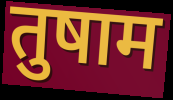
तुषाम